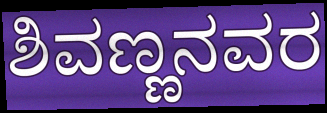
ಶಿವಣ್ಣನವರ